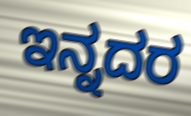
ಇನ್ನದರ